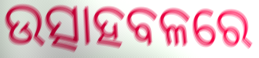
ଉତ୍ସାହବଳରେ